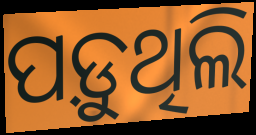
ପଡ଼ୁଥିଲି